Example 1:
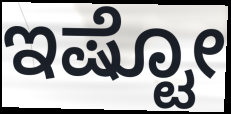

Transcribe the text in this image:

ಇಷ್ಟೋ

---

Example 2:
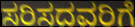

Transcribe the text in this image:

ಸರಿಸದವರಿಗೆ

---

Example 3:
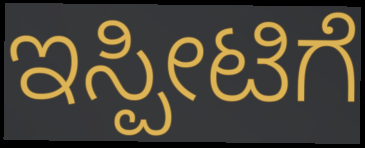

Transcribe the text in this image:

ಇಸ್ಪೀಟಿಗೆ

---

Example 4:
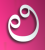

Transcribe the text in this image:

ಲಿ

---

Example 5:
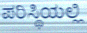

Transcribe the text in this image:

ಪರಿಸ್ಥಿಯಲ್ಲಿ